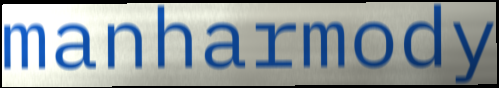
manharmody